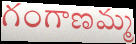
గంగాణమ్మ